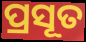
ପ୍ରସୂତ